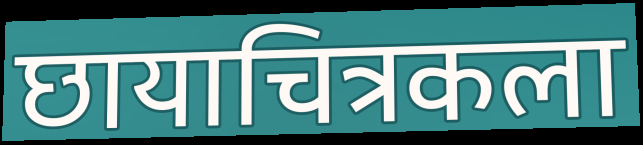
छायाचित्रकला